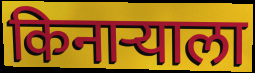
किनाऱ्याला